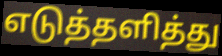
எடுத்தளித்து